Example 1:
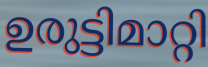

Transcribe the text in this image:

ഉരുട്ടിമാറ്റി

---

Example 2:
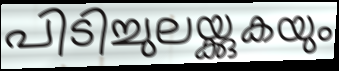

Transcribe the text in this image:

പിടിച്ചുലയ്ക്കുകയും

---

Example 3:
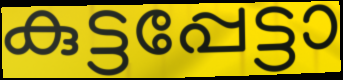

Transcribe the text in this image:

കുട്ടപ്പേട്ടാ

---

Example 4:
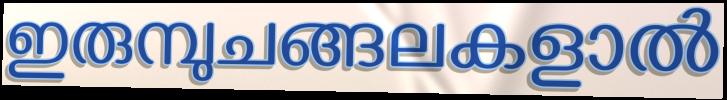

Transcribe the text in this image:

ഇരുമ്പുചങ്ങലകളാൽ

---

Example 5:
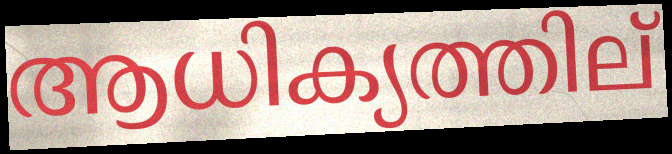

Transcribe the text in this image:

ആധിക്യത്തില്